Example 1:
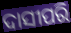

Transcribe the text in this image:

ଦାସୀପରି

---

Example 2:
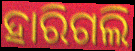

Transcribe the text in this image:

ହାରିଗଲି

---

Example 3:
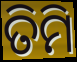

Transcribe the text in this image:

ତିମି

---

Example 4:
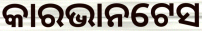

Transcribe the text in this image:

କାରଭାନଟେସ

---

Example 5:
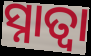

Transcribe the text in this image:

ସ୍ନାତ୍ବା